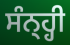
ਸੰਨ੍ਹ੍ਹੀ